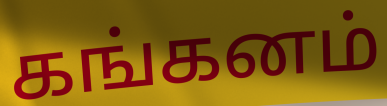
கங்கனம்